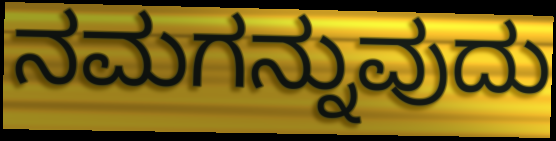
ನಮಗನ್ನುವುದು